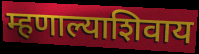
म्हणाल्याशिवाय